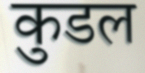
कुडल